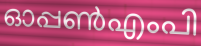
ഓപ്പൺഎംപി